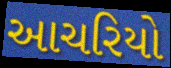
આચરિયો